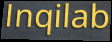
Inqilab